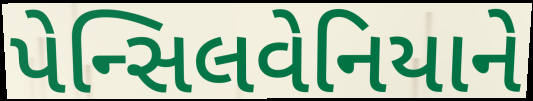
પેન્સિલવેનિયાને